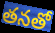
తనతో